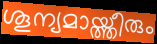
ശൂന്യമായ്ത്തീരും